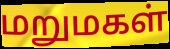
மறுமகள்